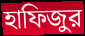
হাফিজুর